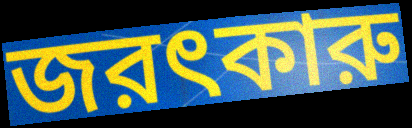
জরৎকারু